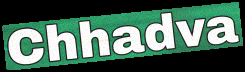
Chhadva